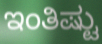
ಇಂತಿಷ್ಟು